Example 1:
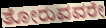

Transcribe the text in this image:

ತೋರುವವರೇ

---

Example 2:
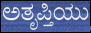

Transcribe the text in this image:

ಅತೃಪ್ತಿಯು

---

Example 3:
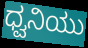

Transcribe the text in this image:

ಧ್ವನಿಯು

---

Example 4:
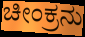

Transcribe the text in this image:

ಚೀಂಕ್ರನು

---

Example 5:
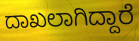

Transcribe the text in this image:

ದಾಖಲಾಗಿದ್ದಾರೆ